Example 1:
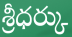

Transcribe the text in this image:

శ్రీధర్కు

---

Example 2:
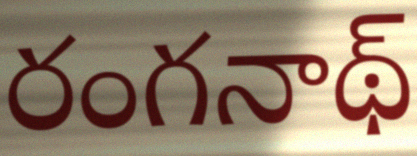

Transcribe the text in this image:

రంగనాథ్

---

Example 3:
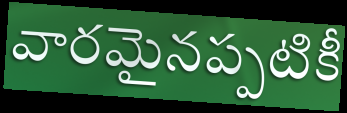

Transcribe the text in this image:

వారమైనప్పటికీ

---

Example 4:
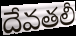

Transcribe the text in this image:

దేవతలీ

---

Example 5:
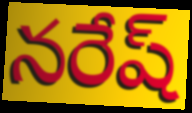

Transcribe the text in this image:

నరేష్